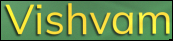
Vishvam